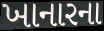
ખાનારના